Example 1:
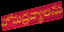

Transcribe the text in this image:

హోమద్రవ్యాలను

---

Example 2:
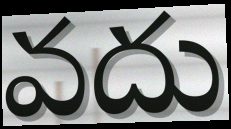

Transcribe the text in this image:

వదు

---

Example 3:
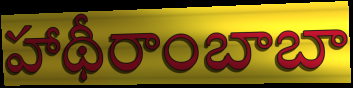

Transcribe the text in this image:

హాథీరాంబాబా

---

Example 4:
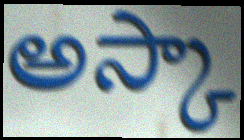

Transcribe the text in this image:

అస్కా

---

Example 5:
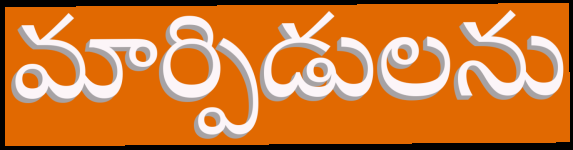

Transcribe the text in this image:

మార్పిడులను